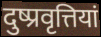
दुष्प्रवृत्तियां